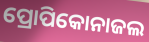
ପ୍ରୋପିକୋନାଜଲ